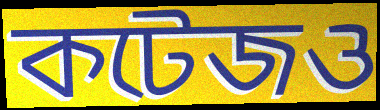
কটেজও